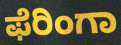
ಫೆರಿಂಗಾ